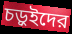
চড়ুইদের